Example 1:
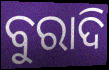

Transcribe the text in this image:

ବୁରାଦି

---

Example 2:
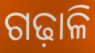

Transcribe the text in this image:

ଗଢ଼ାଳି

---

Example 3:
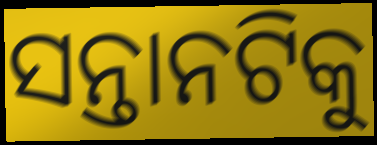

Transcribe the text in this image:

ସନ୍ତାନଟିକୁ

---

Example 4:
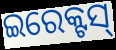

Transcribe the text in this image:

ଇରେକ୍ଟସ୍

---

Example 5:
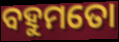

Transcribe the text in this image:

ବହୁମତୋ